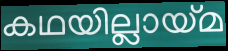
കഥയില്ലായ്മ